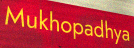
Mukhopadhya